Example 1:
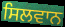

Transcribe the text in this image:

ਸਿਲਵਾਨ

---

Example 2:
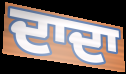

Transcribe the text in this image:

ਦਾਦਾ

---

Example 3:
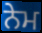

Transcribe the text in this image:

ਨੇਮ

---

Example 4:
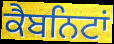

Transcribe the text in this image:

ਕੈਬਨਿਟਾਂ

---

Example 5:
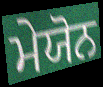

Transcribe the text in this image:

ਮੇਯੋਨ